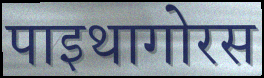
पाइथागोरस